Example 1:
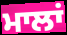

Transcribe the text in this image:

ਮਾਲਾਂ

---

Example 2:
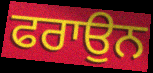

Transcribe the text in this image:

ਫਰਾਉਨ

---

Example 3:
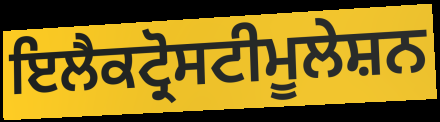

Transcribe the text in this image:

ਇਲੈਕਟ੍ਰੋਸਟੀਮੂਲੇਸ਼ਨ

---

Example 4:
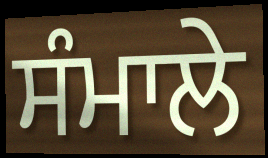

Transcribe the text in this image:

ਸੰਮਾਲੇ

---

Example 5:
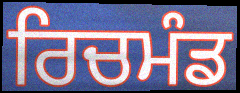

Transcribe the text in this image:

ਰਿਚਮੰਡ